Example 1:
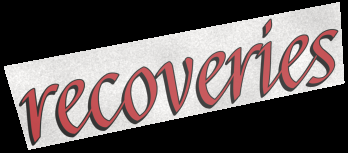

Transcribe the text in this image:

recoveries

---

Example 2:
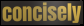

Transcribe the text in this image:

concisely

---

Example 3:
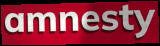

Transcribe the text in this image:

amnesty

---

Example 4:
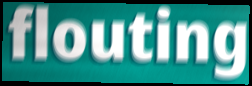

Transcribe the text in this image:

flouting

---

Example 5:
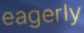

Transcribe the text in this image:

eagerly